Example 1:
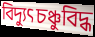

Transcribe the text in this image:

বিদ্যুৎচঞ্চুবিদ্ধ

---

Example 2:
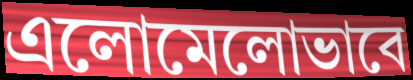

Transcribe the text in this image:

এলোমেলোভাবে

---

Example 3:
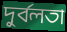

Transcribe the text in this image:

দুর্বলতা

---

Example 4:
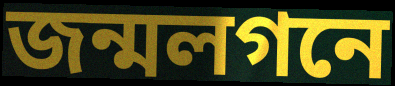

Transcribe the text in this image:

জন্মলগনে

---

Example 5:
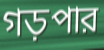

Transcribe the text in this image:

গড়পার